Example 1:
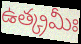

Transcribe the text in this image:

ఉత్క్రమీః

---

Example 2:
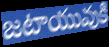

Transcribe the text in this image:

జటాయువుకి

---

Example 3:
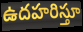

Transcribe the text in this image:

ఉదహరిస్తూ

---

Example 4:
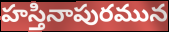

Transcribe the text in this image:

హస్తినాపురమున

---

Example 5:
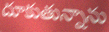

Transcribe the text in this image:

దూకుతున్నాను